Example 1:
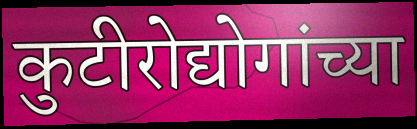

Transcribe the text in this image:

कुटीरोद्योगांच्या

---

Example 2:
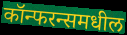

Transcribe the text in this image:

कॉन्फरन्समधील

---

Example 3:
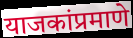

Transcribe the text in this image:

याजकांप्रमाणे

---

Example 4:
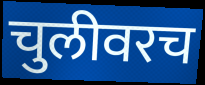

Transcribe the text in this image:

चुलीवरच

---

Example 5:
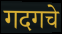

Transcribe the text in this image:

गदगचे